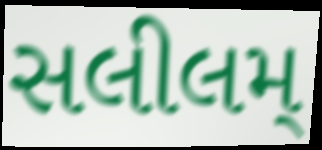
સલીલમ્